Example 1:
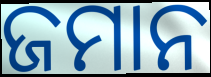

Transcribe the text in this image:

ଜମାନ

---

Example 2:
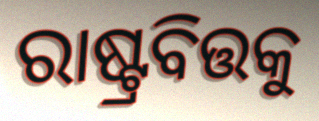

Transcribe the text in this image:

ରାଷ୍ଟ୍ରବିତ୍ତକୁ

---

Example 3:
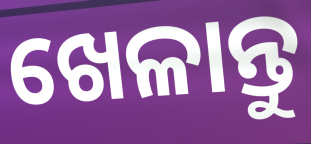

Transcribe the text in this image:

ଖେଳାନ୍ତୁ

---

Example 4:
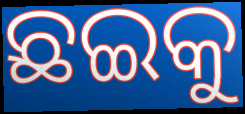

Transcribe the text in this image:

ଛଇକୁ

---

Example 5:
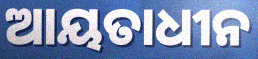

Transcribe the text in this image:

ଆୟତାଧୀନ